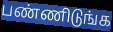
பண்ணிடுங்க